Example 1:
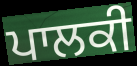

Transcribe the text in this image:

ਪਾਲਕੀ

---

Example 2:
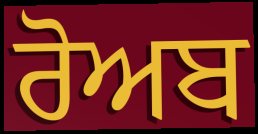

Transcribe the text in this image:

ਰੋਅਬ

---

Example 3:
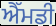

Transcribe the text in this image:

ਐੱਮਡੀ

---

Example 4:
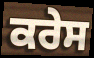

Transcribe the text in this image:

ਕਰੇਸ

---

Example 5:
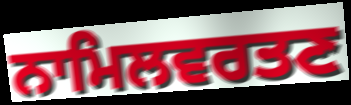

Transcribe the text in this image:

ਨਾਮਿਲਵਰਤਣ